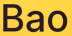
Bao